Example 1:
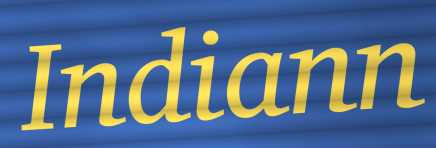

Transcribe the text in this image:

Indiann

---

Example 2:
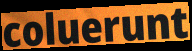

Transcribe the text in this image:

coluerunt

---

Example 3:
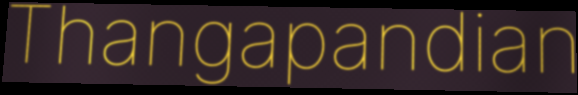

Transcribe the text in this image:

Thangapandian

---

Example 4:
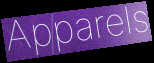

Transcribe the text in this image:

Apparels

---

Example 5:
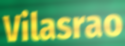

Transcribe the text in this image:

Vilasrao